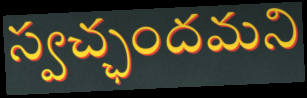
స్వచ్ఛందమని